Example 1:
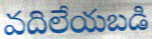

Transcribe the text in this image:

వదిలేయబడి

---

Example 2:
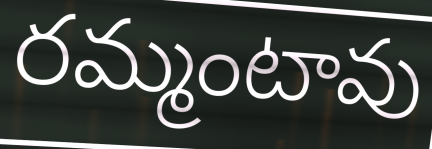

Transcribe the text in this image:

రమ్మంటావు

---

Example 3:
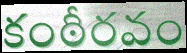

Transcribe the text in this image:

కంఠీరవం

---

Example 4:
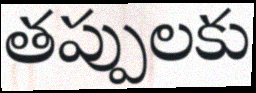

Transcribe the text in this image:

తప్పులకు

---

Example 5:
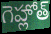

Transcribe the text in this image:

గెహ్లోత్